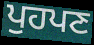
ਪੁਹਪਣ